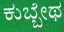
ಕುಬ್ಬೇಥ